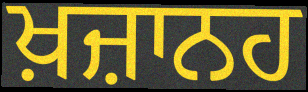
ਖ਼ਜ਼ਾਨਹ